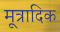
मूत्रादिक